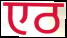
एठ